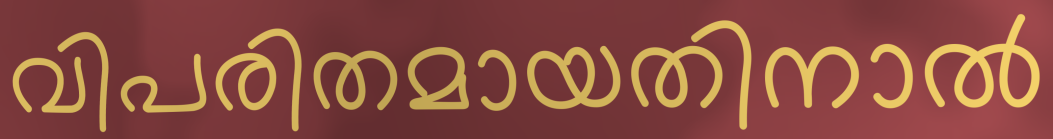
വിപരിതമായതിനാൽ